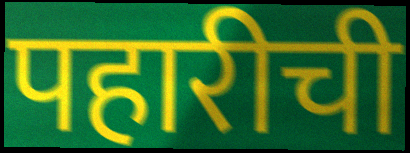
पहारीची